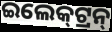
ଇଲେକ୍‍ଟ୍ରନ୍